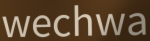
wechwa